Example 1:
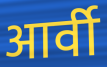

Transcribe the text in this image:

आर्वी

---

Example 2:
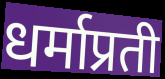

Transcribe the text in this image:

धर्माप्रती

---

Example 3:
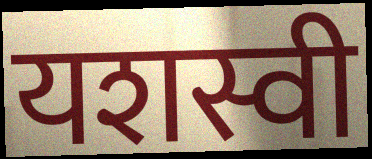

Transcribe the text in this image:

यशस्वी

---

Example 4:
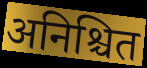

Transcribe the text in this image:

अनिश्चित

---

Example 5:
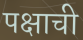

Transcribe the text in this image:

पक्षाची